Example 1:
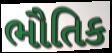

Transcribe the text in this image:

ભૌતિક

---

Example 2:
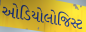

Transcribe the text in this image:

ઓડિયોલોજિસ્ટ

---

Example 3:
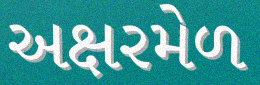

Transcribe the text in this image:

અક્ષરમેળ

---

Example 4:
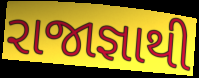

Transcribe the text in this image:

રાજાજ્ઞાથી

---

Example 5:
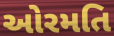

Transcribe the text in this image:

ઓરમતિ